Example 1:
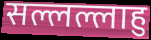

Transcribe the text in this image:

सल्लल्लाहु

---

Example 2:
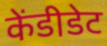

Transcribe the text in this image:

केंडीडेट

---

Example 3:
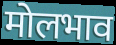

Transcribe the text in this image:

मोलभाव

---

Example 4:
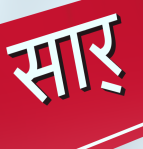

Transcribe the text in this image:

सार्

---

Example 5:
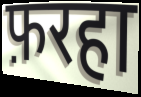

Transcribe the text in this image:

फ़रहा